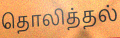
தொலித்தல்